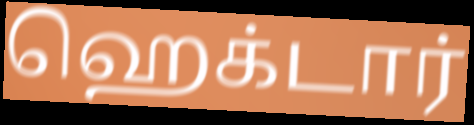
ஹெக்டார்